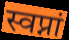
स्वप्नां